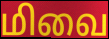
மிவை